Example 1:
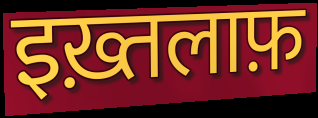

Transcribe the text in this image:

इख़्तलाफ़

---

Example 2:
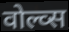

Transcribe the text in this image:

वोल्व्स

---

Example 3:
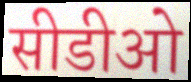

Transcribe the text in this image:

सीडीओ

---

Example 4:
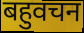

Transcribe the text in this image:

बहुवचन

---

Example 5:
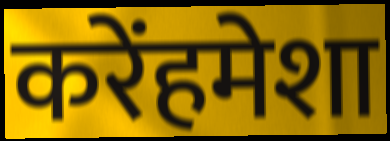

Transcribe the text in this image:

करेंहमेशा